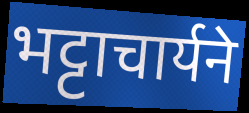
भट्टाचार्यने